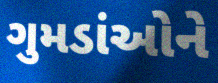
ગુમડાંઓને